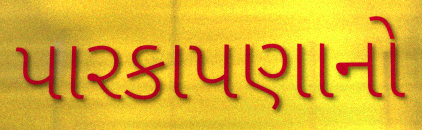
પારકાપણાનો